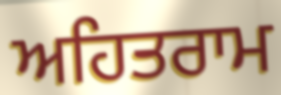
ਅਹਿਤਰਾਮ